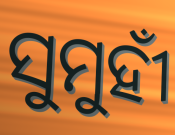
ସୁମୁହୀଁ